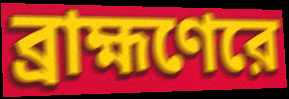
ব্রাহ্মণেরে